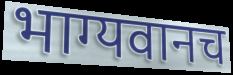
भाग्यवानच